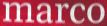
marco